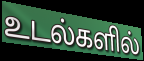
உடல்களில்